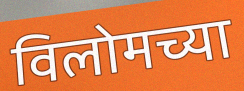
विलोमच्या